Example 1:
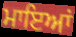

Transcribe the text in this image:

ਮਾਇਆਂ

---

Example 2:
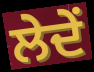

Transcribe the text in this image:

ਲੇਦੇਂ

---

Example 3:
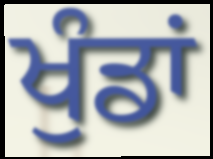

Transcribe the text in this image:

ਖੁੰਡਾਂ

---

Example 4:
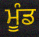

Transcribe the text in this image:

ਮੂੰਡ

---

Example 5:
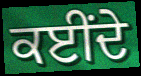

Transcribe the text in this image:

ਕਈਂਦੇ